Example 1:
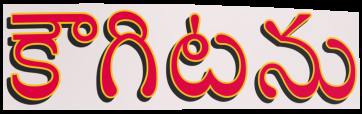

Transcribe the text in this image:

కౌగిటను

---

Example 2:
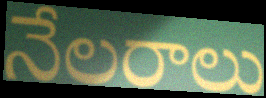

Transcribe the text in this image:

నేలరాలు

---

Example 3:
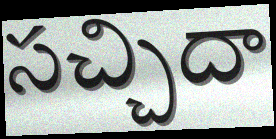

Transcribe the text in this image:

సచ్చిదా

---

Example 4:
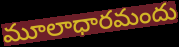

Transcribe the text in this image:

మూలాధారమందు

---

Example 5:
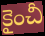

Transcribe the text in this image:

కైంచీ